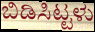
ಬಿಡಿಸಿಟ್ಟಳು